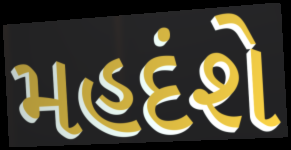
મહદંશે